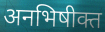
अनभिषीक्त